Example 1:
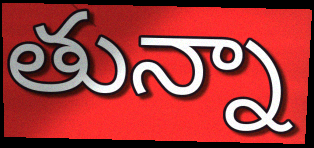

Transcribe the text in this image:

తున్నా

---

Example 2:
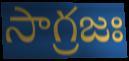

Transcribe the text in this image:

సాగ్రజః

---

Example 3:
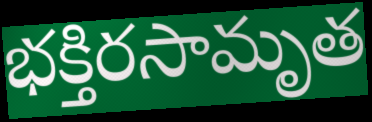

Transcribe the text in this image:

భక్తిరసామృత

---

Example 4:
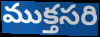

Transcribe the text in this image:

ముక్తసరి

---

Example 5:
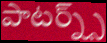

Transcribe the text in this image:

పాటర్న్స్